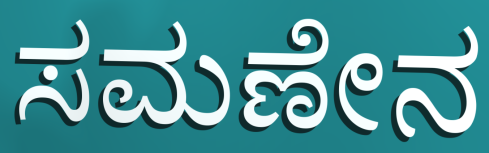
ಸಮಣೇನ